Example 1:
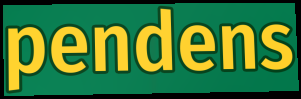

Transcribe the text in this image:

pendens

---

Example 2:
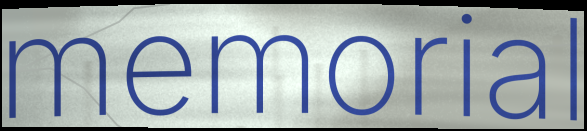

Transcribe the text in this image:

memorial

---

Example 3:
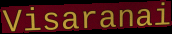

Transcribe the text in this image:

Visaranai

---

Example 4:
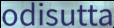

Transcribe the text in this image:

odisutta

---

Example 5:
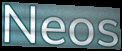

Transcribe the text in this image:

Neos